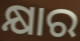
କ୍ଷାର